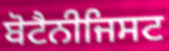
ਬੋਟੈਨੀਜਿਸਟ